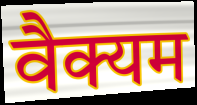
वैक्यम